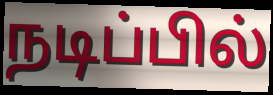
நடிப்பில்